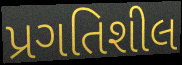
પ્રગતિશીલ